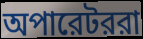
অপারেটররা